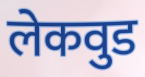
लेकवुड